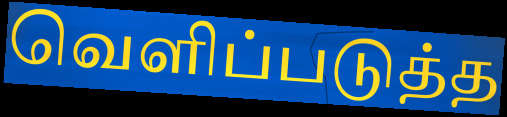
வெளிப்படுத்த